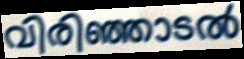
വിരിഞ്ഞാടൽ